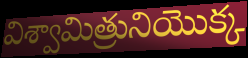
విశ్వామిత్రునియొక్క